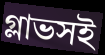
গ্লাভসই